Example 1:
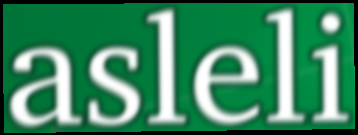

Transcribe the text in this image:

asleli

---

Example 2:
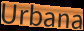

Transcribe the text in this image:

Urbana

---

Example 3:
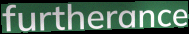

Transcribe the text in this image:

furtherance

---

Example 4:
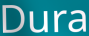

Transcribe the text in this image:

Dura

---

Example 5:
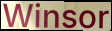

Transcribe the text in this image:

Winsor